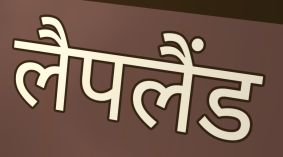
लैपलैंड